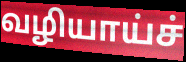
வழியாய்ச்